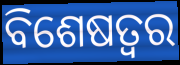
ବିଶେଷତ୍ବର